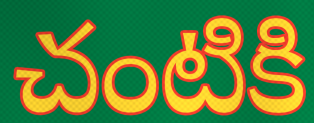
చంటికి